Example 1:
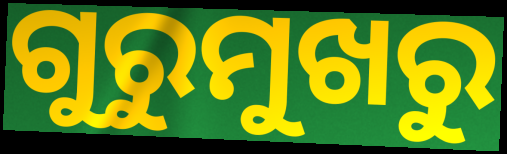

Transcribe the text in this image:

ଗୁରୁମୁଖରୁ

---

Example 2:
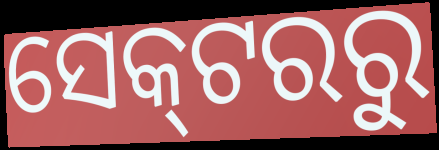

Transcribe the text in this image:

ସେକ୍‌ଟରରୁ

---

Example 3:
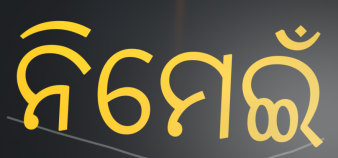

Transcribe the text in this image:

ନିମେଇଁ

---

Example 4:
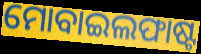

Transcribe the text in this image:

ମୋବାଇଲଫାଷ୍ଟ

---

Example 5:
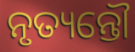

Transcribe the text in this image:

ନୃତ୍ୟନ୍ତୌ